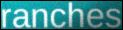
ranches